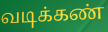
வடிக்கண்